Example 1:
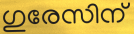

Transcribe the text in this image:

ഗുരേസിന്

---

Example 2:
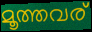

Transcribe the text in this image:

മൂത്തവര്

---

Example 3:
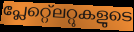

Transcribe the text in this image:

പ്ലേറ്റ്ലെറ്റുകളുടെ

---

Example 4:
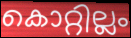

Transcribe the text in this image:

കൊറ്റില്ലം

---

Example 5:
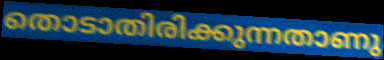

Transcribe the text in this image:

തൊടാതിരിക്കുന്നതാണു